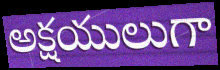
అక్షయులుగా